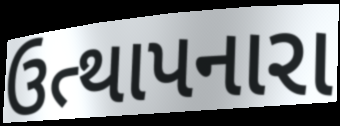
ઉત્થાપનારા